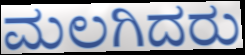
ಮಲಗಿದರು